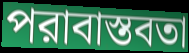
পরাবাস্তবতা